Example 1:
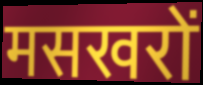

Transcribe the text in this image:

मसखरों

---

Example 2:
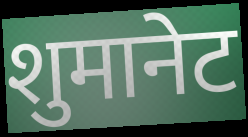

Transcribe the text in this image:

शुमानेट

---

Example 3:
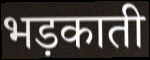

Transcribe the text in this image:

भड़काती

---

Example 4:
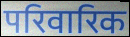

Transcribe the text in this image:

परिवारिक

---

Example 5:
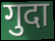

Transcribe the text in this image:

गुदा